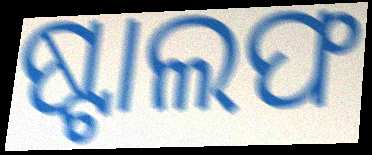
ଷ୍ଟାଲଫ